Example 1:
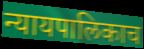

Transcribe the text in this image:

न्यायपालिकाच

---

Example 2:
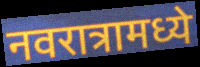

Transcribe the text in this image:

नवरात्रामध्ये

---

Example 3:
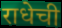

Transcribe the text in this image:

राधेची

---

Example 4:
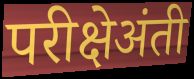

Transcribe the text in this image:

परीक्षेअंती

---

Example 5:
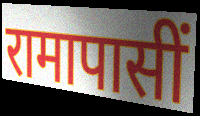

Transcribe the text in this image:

रामापासीं